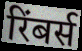
रिंबर्स